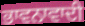
ਭਾਵਨਾਵਾਦੀ